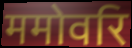
ममोवरि